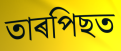
তাৰপিছত